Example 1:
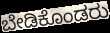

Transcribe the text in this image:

ಬೇಡಿಕೊಂಡರು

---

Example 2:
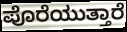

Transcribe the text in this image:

ಪೊರೆಯುತ್ತಾರೆ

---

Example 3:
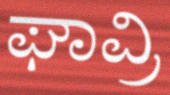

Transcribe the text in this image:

ಘಾವ್ರಿ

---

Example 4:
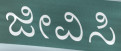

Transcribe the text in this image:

ಜೀವಿಸಿ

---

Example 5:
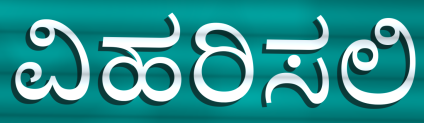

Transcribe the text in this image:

ವಿಹರಿಸಲಿ